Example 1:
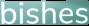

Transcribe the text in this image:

bishes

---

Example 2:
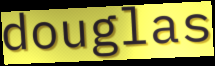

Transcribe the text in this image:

douglas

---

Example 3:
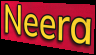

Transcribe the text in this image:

Neera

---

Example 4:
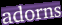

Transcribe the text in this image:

adorns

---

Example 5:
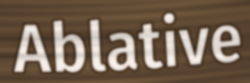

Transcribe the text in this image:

Ablative